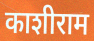
काशीराम